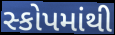
સ્કોપમાંથી